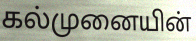
கல்முனையின்